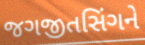
જગજીતસિંગને